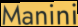
Manini